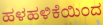
ಹಳಹಳಿಕೆಯಿಂದ